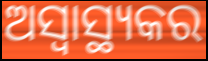
ଅସ୍ବାସ୍ଥ୍ୟକର